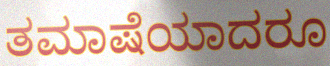
ತಮಾಷೆಯಾದರೂ